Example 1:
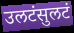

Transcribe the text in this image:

उलटंसुलटं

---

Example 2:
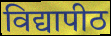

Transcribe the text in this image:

विद्यापीठ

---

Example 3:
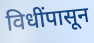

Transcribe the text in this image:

विधींपासून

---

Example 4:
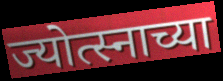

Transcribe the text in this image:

ज्योत्स्नाच्या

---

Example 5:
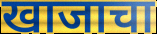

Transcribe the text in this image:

खाजाचा